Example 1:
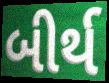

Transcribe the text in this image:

બીર્થ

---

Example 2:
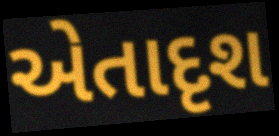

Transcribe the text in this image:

એતાદૃશ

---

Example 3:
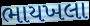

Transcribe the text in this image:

ભાયખલા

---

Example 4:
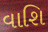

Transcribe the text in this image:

વાશિ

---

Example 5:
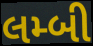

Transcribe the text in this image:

લમ્બી